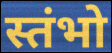
स्तंभो